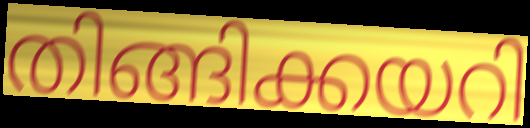
തിങ്ങിക്കയറി